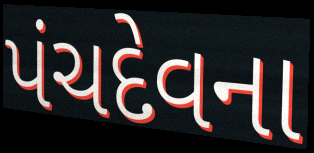
પંચદેવના